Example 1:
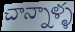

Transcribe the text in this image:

చాన్నాళ్ళ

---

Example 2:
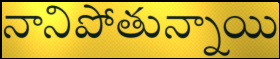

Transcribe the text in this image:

నానిపోతున్నాయి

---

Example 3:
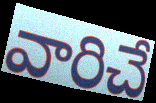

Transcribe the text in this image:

వారిచే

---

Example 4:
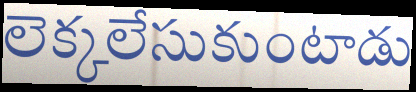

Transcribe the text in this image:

లెక్కలేసుకుంటాడు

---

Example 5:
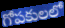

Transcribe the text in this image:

గోపకులలో